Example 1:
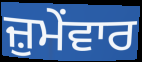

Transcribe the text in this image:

ਜ਼ੁਮੇਂਵਾਰ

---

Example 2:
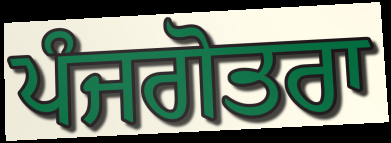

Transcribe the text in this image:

ਪੰਜਗੋਤਰਾ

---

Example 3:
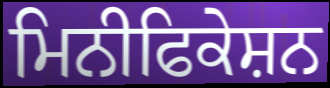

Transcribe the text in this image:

ਮਿਨੀਫਿਕੇਸ਼ਨ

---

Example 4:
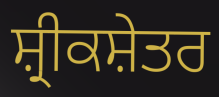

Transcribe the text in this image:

ਸ਼੍ਰੀਕਸ਼ੇਤਰ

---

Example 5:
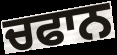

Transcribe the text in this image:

ਚਫਾਨ